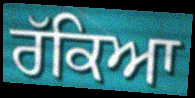
ਰੱਕਿਆ